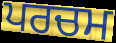
ਪਰਚਮ